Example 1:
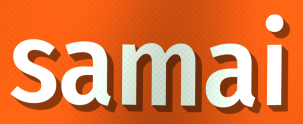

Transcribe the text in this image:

samai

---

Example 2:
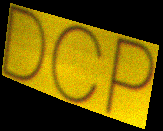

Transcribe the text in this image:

DCP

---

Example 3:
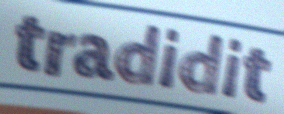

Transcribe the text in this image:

tradidit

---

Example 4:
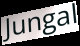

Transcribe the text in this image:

Jungal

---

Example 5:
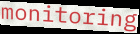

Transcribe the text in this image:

monitoring